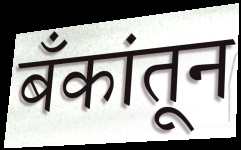
बँकांतून